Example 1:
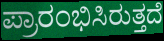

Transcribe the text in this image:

ಪ್ರಾರಂಭಿಸಿರುತ್ತದೆ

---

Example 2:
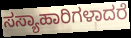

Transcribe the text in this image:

ಸಸ್ಯಾಹಾರಿಗಳಾದರೆ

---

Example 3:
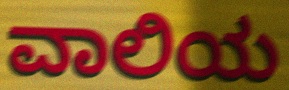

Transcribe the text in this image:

ವಾಲಿಯ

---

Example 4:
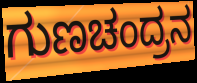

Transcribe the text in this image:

ಗುಣಚಂದ್ರನ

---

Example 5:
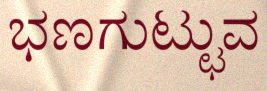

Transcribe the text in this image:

ಭಣಗುಟ್ಟುವ